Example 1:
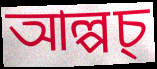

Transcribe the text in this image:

আল্পচ্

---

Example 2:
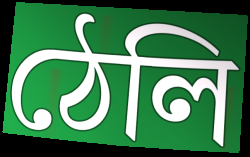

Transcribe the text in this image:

ঠেলি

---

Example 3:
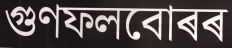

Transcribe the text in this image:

গুণফলবোৰৰ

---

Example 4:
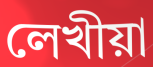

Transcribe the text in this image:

লেখীয়া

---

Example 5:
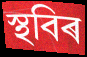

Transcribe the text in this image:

স্থবিৰ